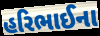
હરિભાઈના